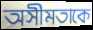
অসীমতাকে